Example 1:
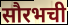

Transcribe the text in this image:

सौरभची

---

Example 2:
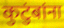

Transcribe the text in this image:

कुटुंबांना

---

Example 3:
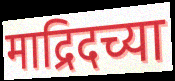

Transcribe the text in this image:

माद्रिदच्या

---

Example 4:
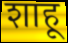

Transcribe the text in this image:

शाहू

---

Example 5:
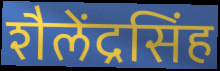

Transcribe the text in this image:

शैलेंद्रसिंह